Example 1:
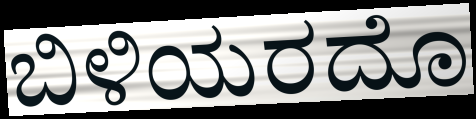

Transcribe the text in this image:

ಬಿಳಿಯರದೊ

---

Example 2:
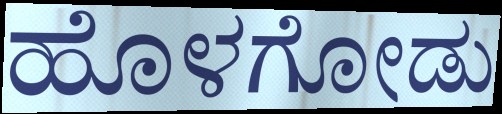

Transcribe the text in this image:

ಹೊಳಗೋಡು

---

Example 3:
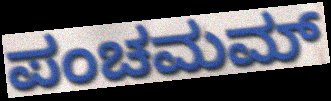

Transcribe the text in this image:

ಪಂಚಮಮ್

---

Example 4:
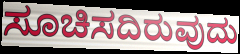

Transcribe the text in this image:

ಸೂಚಿಸದಿರುವುದು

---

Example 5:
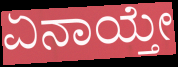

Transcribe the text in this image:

ಏನಾಯ್ತೇ